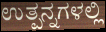
ಉತ್ಪನ್ನಗಳಲ್ಲಿ